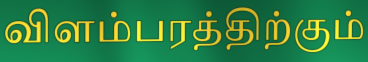
விளம்பரத்திற்கும்